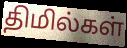
திமில்கள்